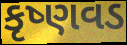
કૃષ્ણવડ